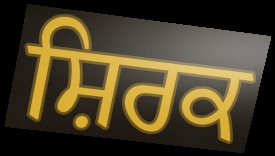
ਸ਼ਿਰਕ